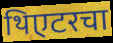
थिएटरचा